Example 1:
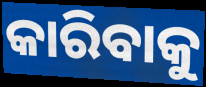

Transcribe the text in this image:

କାରିବାକୁ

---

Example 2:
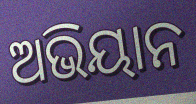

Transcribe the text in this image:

ଅଭିୟାନ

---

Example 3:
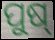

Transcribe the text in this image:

ପୁଷ୍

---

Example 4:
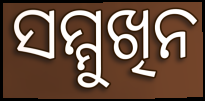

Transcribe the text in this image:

ସମ୍ମୁଖିନ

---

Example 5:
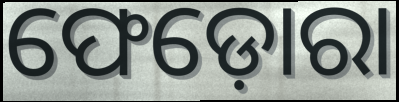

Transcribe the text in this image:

ଫେଡ଼ୋରା